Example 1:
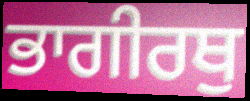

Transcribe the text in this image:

ਭਾਗੀਰਥੁ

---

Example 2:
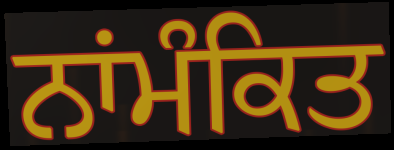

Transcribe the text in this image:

ਨਾਂਮੰਕਿਤ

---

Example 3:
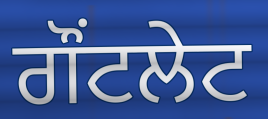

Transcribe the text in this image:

ਗੌਂਟਲੇਟ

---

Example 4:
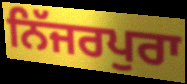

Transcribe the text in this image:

ਨਿੱਜਰਪੁਰਾ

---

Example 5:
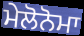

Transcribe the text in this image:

ਮੇਲੋਨੋਮਾ